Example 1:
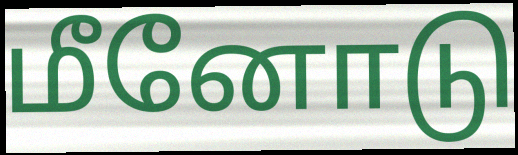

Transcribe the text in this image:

மீனோடு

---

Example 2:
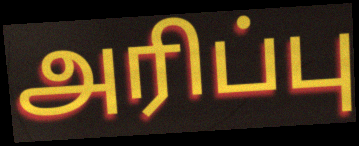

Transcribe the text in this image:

அரிப்பு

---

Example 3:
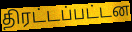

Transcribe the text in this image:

திரட்டப்பட்டன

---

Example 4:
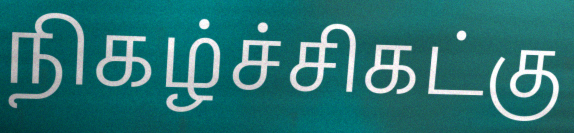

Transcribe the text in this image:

நிகழ்ச்சிகட்கு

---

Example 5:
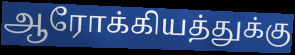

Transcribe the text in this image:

ஆரோக்கியத்துக்கு